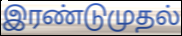
இரண்டுமுதல்